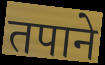
तपाने